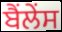
ਬੈਂਲੇਂਸ